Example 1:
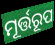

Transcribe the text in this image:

ମୂର୍ତ୍ତରୂପ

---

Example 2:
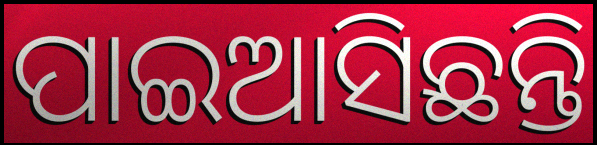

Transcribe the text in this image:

ପାଇଆସିଛନ୍ତି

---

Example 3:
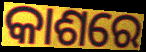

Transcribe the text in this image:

କାଶରେ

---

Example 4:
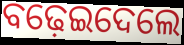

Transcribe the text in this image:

ବଢ଼େଇଦେଲେ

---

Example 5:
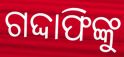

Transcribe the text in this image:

ଗଦ୍ଦାଫିଙ୍କୁ